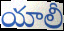
యాలీ